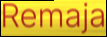
Remaja